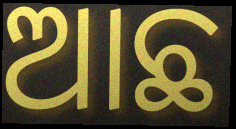
ଆଛ